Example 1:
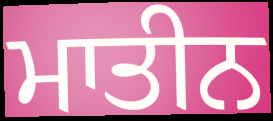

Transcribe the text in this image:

ਮਾਤੀਨ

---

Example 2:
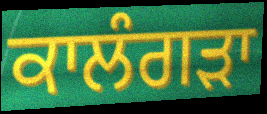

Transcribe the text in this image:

ਕਾਲੰਗੜਾ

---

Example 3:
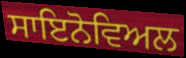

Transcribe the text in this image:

ਸਾਇਨੋਵਿਅਲ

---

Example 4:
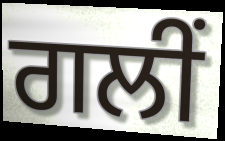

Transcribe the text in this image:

ਗਲੀਂ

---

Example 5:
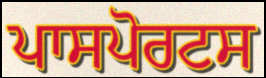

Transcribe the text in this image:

ਪਾਸਪੋਰਟਸ